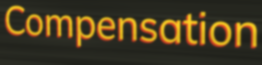
Compensation